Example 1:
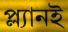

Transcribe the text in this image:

প্ল্যানই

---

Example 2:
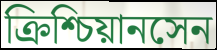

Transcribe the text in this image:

ক্রিশ্চিয়ানসেন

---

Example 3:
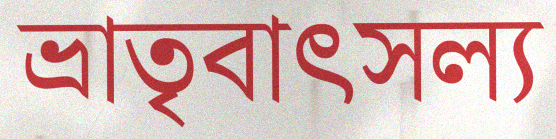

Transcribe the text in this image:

ভ্রাতৃবাৎসল্য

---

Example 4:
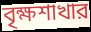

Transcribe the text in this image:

বৃক্ষশাখার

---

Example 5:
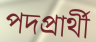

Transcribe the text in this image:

পদপ্রার্থী